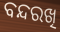
ବନ୍ଦରଖି